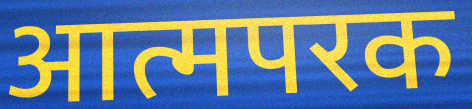
आत्मपरक